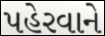
પહેરવાને